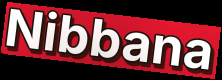
Nibbana